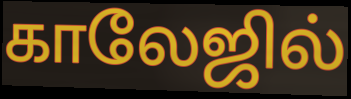
காலேஜில்